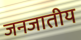
जनजातीय